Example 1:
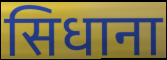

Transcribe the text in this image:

सिधाना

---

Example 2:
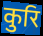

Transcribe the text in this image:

कुरि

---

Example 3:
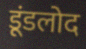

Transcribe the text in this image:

डूंडलोद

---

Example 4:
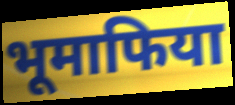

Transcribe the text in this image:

भूमाफिया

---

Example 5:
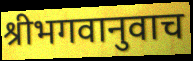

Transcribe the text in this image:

श्रीभगवानुवाच